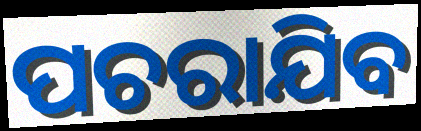
ପଚରାଯିବ